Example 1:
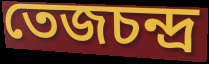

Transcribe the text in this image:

তেজচন্দ্র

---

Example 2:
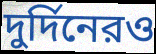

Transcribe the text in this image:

দুর্দিনেরও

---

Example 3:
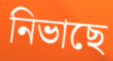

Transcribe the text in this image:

নিভাছে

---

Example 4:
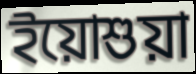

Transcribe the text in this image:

ইয়োশুয়া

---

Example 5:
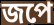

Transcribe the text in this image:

জপে